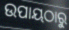
ଉପାୟଠାରୁ